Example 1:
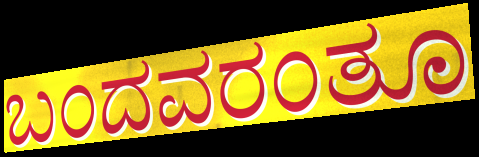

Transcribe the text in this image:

ಬಂದವರಂತೂ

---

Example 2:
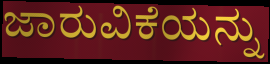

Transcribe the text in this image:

ಜಾರುವಿಕೆಯನ್ನು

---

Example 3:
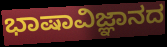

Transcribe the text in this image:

ಭಾಷಾವಿಜ್ಞಾನದ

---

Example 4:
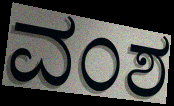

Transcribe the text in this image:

ವಂಶ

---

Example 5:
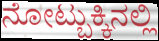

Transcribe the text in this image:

ನೋಟ್ಬುಕ್ಕಿನಲ್ಲಿ